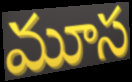
మూస